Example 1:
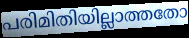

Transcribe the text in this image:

പരിമിതിയില്ലാത്തതോ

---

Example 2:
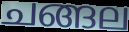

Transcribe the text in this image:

ചങ്ങല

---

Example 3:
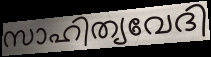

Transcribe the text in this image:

സാഹിത്യവേദി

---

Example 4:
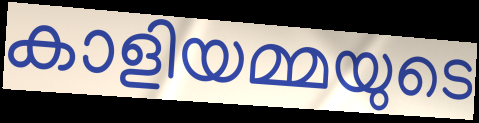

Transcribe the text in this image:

കാളിയമ്മയുടെ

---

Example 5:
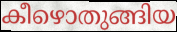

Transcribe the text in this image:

കീഴൊതുങ്ങിയ